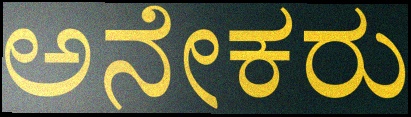
ಅನೇಕರು